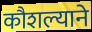
कौशल्याने